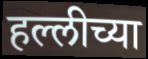
हल्लीच्या